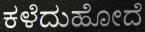
ಕಳೆದುಹೋದೆ